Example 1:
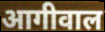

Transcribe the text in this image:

आगीवाल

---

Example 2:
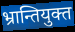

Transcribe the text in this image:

भ्रान्तियुक्त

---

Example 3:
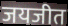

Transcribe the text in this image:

जयजीत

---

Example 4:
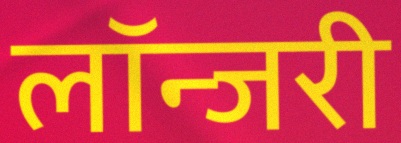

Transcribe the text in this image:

लॉन्जरी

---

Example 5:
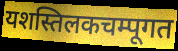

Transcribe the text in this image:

यशस्तिलकचम्पूगत